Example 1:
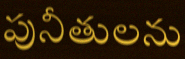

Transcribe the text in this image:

పునీతులను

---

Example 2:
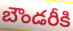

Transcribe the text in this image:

బౌండరీకి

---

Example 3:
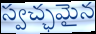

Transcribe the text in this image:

స్వచ్ఛమైన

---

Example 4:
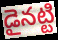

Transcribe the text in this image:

డైనట్టి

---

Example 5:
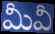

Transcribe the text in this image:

మీవీ